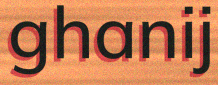
ghanij